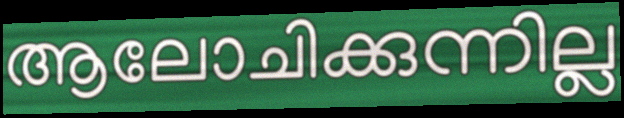
ആലോചിക്കുന്നില്ല